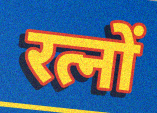
रत्नों